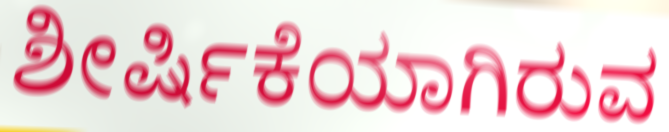
ಶೀರ್ಷಿಕೆಯಾಗಿರುವ